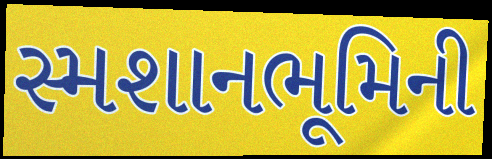
સ્મશાનભૂમિની